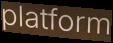
platform